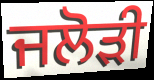
ਜਲੋੜੀ